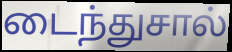
டைந்துசால்